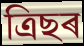
ত্ৰিছৰ